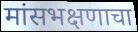
मांसभक्षणाचा